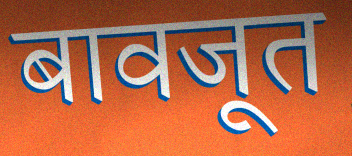
बावजूत